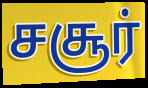
சசூர்